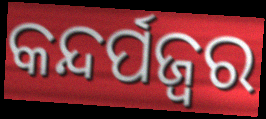
କନ୍ଦର୍ପଜ୍ବର